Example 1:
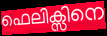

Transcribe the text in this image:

ഫെലിക്സിനെ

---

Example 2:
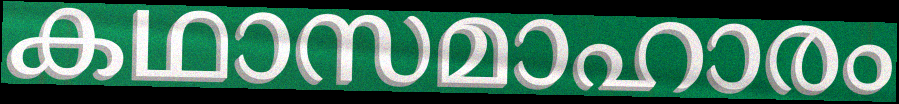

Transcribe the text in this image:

കഥാസമാഹാരം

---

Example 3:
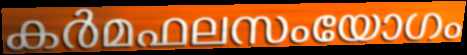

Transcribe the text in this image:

കർമഫലസംയോഗം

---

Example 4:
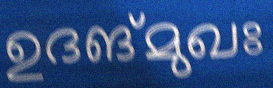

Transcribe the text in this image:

ഉദങ്മുഖഃ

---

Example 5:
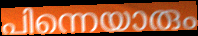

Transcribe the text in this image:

പിന്നെയാരും